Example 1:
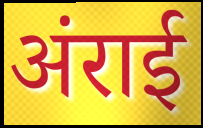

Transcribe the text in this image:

अंराई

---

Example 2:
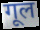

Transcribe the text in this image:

गूल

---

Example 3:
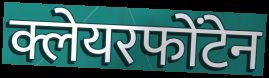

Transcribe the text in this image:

क्लेयरफोंटेन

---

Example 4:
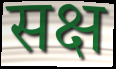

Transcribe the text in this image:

सक्ष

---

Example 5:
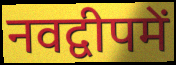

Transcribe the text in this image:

नवद्वीपमें